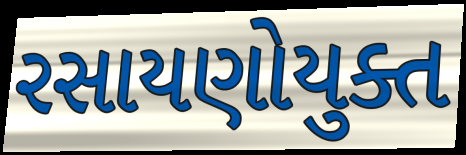
રસાયણોયુક્ત